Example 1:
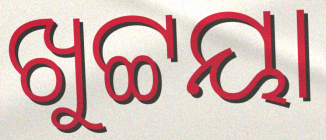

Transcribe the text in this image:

ଖୁଟ୍ଟୟା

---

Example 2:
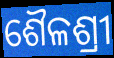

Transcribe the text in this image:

ଶୈଳଶ୍ରୀ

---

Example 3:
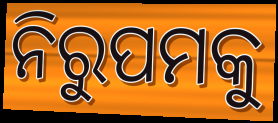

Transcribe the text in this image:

ନିରୁପମକୁ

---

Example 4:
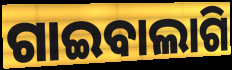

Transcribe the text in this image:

ଗାଇବାଲାଗି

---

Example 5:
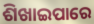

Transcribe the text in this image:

ଶିଖାଇପାରେ